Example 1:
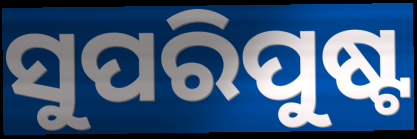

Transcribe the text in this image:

ସୁପରିପୁଷ୍ଟ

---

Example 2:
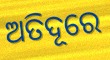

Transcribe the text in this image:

ଅତିଦୂରେ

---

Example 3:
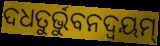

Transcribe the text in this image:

ଦଧତୁର୍ଭୁବନଦ୍ଵୟମ୍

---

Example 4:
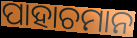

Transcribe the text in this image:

ପାହାଚମାନ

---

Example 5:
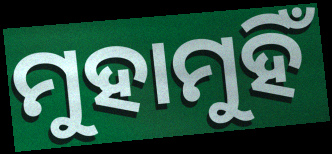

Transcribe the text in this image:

ମୁହାମୁହିଁ